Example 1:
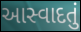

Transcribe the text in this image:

આસ્વાદતું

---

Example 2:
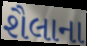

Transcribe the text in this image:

શૈલાના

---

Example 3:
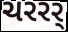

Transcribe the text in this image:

ચરરર્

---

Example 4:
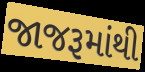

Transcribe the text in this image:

જાજરૂમાંથી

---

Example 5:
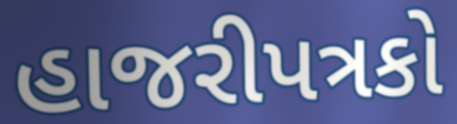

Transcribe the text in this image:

હાજરીપત્રકો